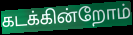
கடக்கின்றோம்